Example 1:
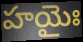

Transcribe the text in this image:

హయైః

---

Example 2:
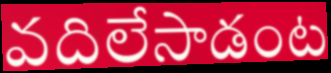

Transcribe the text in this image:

వదిలేసాడంట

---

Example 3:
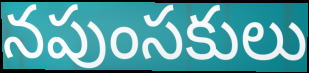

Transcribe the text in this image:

నపుంసకులు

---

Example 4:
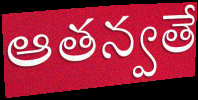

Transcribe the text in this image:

ఆతన్వతే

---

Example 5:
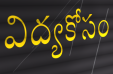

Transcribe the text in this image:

విద్యకోసం